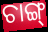
ଚାଙ୍ଗ୍